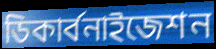
ডিকার্বনাইজেশন